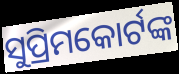
ସୁପ୍ରିମକୋର୍ଟଙ୍କ